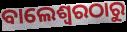
ବାଲେଶ୍ବରଠାରୁ